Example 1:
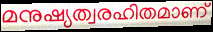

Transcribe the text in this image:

മനുഷ്യത്വരഹിതമാണ്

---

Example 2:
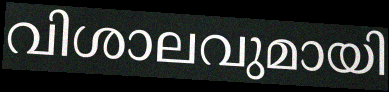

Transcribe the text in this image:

വിശാലവുമായി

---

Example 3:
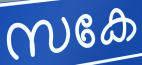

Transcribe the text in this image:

സകേ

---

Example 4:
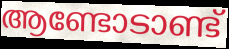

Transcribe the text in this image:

ആണ്ടോടാണ്ട്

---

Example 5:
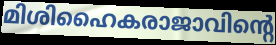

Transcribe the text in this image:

മിശിഹൈകരാജാവിന്റെ